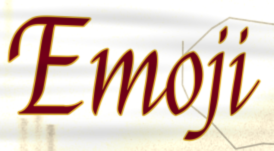
Emoji